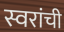
स्वरांची